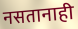
नसतानाही